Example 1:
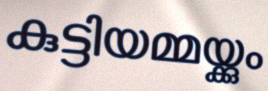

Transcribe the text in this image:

കുട്ടിയമ്മയ്ക്കും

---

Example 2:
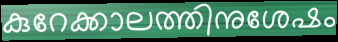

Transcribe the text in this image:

കുറേക്കാലത്തിനുശേഷം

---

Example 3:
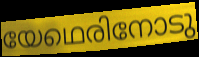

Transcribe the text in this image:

യേഥെരിനോടു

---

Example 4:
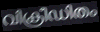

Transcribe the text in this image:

വിക്രീഡിതം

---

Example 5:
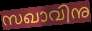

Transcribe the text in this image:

സഖാവിനു